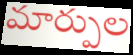
మార్పుల